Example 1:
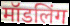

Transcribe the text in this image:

मॉडलिंग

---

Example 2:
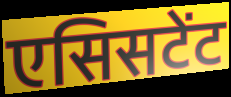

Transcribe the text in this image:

एसिसटेंट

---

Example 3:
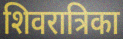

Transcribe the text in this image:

शिवरात्रिका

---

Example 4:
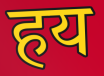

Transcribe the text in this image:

हय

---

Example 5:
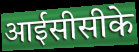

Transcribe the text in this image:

आईसीसीके